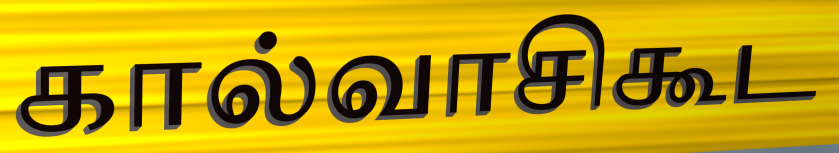
கால்வாசிகூட